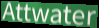
Attwater